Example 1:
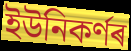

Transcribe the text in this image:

ইউনিকৰ্ণৰ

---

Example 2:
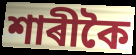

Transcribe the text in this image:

শাৰীকৈ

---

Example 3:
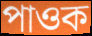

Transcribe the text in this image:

পাওক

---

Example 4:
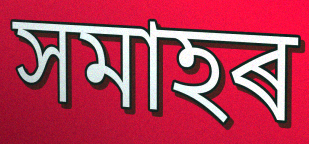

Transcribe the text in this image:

সমাহৰ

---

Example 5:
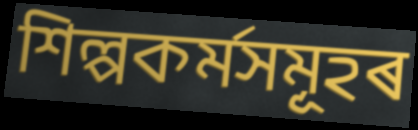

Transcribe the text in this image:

শিল্পকৰ্মসমূহৰ